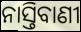
ନାସ୍ତିବାଣୀ